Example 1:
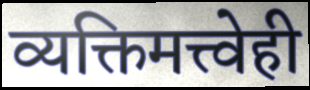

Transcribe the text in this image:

व्यक्तिमत्त्वेही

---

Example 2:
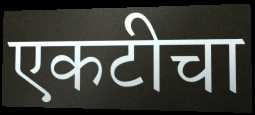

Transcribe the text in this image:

एकटीचा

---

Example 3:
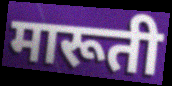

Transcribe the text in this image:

मारूती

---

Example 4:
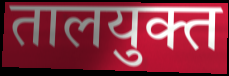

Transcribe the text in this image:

तालयुक्त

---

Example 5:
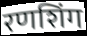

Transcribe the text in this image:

रणशिंग